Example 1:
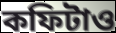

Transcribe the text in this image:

কফিটাও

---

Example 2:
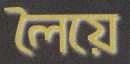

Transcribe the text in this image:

লৈয়ে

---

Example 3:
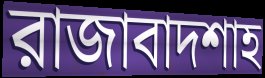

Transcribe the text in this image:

রাজাবাদশাহ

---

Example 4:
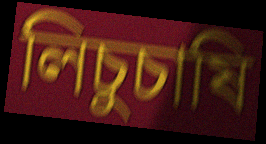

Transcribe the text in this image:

লিচুচাষি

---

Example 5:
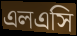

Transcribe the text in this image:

এলএসি